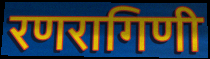
रणरागिणी